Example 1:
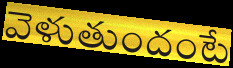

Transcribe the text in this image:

వెళుతుందంటే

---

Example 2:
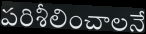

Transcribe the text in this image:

పరిశీలించాలనే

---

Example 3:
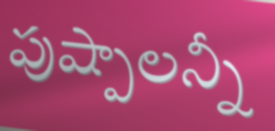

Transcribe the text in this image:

పుష్పాలన్నీ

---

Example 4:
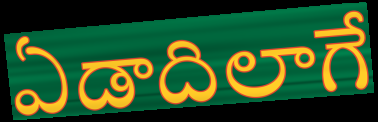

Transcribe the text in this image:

ఏడాదిలాగే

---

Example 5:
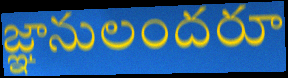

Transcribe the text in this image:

జ్ఞానులందరూ